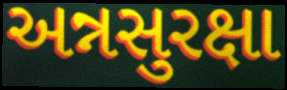
અન્નસુરક્ષા